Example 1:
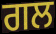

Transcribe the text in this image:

ਗਲ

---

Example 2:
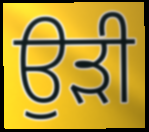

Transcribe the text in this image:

ਉਡ਼ੀ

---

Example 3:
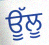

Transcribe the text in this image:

ਊੱਲੂ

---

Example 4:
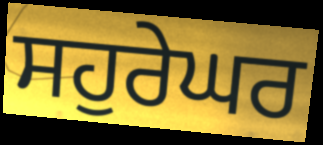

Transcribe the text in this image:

ਸਹੁਰੇਘਰ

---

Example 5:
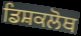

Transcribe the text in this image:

ਡਿਸ਼ਕਲੋਥ